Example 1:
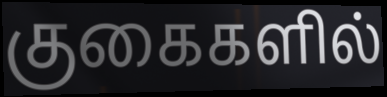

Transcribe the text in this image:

குகைகளில்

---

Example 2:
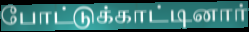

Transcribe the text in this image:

போட்டுக்காட்டினார்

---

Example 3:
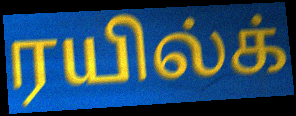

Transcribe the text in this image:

ரயில்க்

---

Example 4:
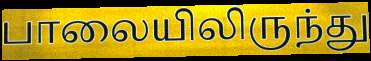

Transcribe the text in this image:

பாலையிலிருந்து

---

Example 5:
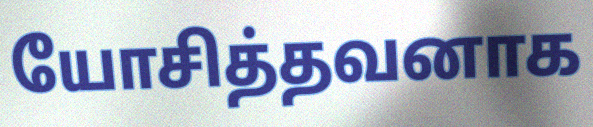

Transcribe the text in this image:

யோசித்தவனாக